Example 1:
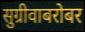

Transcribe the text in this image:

सुग्रीवाबरोबर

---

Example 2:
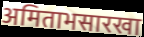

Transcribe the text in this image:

अमिताभसारखा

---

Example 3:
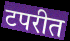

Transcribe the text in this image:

टपरीत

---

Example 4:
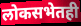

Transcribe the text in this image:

लोकसभेतही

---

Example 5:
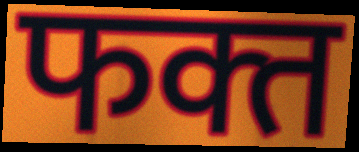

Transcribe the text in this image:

फक्‍त